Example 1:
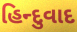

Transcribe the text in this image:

હિન્દુવાદ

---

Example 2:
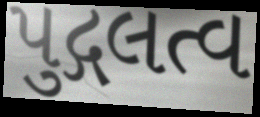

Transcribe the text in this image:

પુદ્ગલત્વ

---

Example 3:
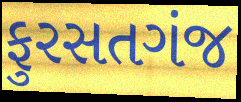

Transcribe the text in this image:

ફુરસતગંજ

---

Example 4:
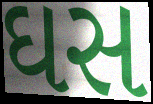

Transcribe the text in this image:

ઘસ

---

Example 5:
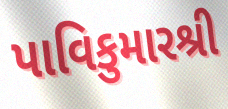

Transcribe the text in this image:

પાવિકુમારશ્રી